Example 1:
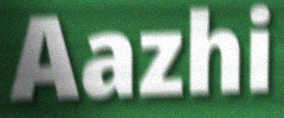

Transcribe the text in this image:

Aazhi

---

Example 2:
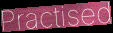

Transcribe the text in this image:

Practised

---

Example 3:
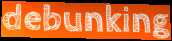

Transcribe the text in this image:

debunking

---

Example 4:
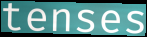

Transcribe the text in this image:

tenses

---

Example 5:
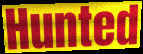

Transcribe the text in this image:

Hunted